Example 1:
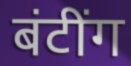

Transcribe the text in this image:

बंटींग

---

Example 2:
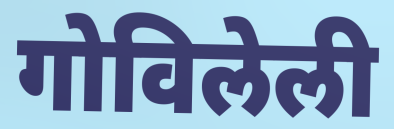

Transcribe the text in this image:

गोविलेली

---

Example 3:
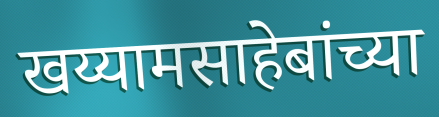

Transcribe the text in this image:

खय्यामसाहेबांच्या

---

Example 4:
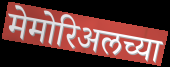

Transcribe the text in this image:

मेमोरिअलच्या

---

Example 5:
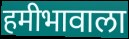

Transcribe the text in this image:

हमीभावाला